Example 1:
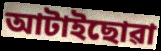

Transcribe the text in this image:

আটাইছোৱা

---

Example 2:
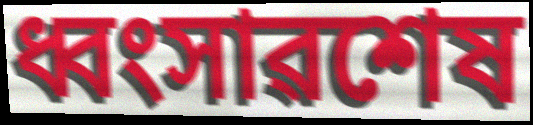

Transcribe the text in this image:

ধ্বংসাৱশেষ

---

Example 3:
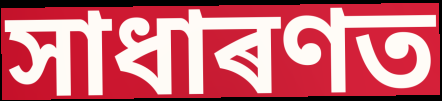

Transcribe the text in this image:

সাধাৰণত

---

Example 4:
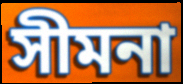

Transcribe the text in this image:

সীমনা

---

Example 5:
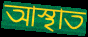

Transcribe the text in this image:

আস্থাত